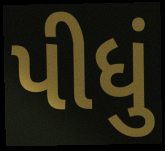
પીધું